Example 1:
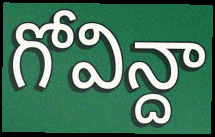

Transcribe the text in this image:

గోవిన్దా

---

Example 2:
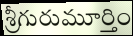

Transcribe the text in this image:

శ్రీగురుమూర్తిం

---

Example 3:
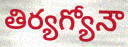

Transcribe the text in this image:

తిర్యగ్యోనౌ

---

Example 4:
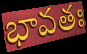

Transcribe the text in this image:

భావతః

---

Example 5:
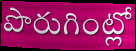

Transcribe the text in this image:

పొరుగింట్లో